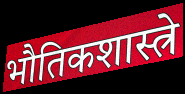
भौतिकशास्त्रे